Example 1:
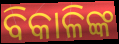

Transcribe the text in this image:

ବିକାଳିଙ୍କ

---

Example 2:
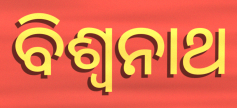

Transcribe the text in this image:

ବିଶ୍ୱନାଥ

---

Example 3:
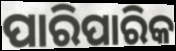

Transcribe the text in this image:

ପାରିପାରିକ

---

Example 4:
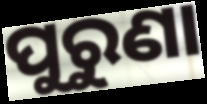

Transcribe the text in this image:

ପୁରୁଣା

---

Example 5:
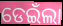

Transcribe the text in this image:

ଡେଇଁଲା